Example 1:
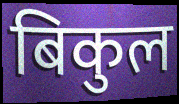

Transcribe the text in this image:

बिकुल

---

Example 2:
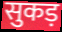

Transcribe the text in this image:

सुकड़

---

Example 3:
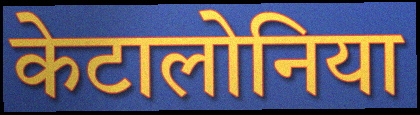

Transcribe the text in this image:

केटालोनिया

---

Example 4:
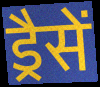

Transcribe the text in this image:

ड्रैसें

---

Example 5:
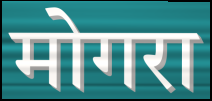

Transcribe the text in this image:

मोगरा